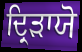
ਦ੍ਰਿੜਾਯੋ